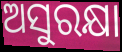
ଅସୁରକ୍ଷା